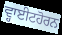
ਵ੍ਹਾਈਟਹੋਰਨ